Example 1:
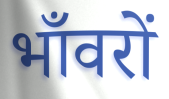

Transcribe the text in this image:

भाँवरों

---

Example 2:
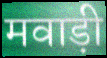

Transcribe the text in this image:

मवाड़ी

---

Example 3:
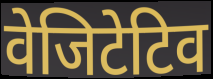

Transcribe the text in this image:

वेजिटेटिव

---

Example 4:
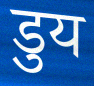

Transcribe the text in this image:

डुय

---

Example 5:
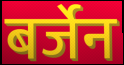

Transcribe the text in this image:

बर्जेन